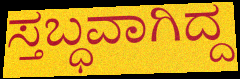
ಸ್ತಬ್ಧವಾಗಿದ್ದ